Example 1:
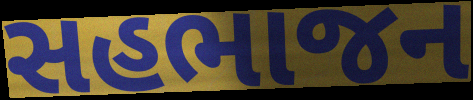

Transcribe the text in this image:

સહભાજન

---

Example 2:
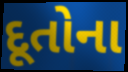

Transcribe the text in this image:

દૂતોના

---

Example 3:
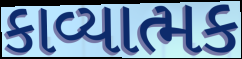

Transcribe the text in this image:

કાવ્યાત્મક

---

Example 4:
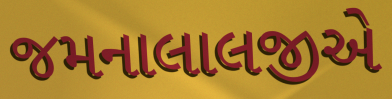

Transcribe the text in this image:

જમનાલાલજીએ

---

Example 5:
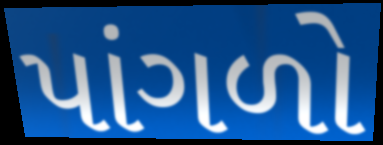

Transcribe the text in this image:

પાંગળો